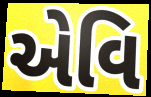
એવિ